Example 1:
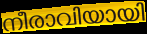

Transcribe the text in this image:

നീരാവിയായി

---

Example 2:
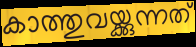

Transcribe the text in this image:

കാത്തുവയ്ക്കുന്നത്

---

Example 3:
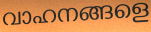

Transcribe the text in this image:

വാഹനങ്ങളെ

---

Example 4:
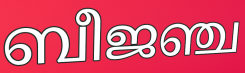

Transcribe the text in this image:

ബീജഞ്ച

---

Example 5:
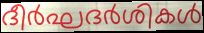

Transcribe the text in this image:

ദീർഘദർശികൾ